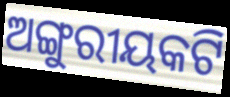
ଅଙ୍ଗୁରୀୟକଟି